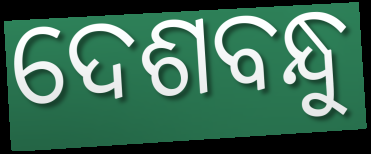
ଦେଶବନ୍ଧୁ